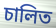
চালিত